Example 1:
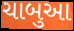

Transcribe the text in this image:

ચાબુઆ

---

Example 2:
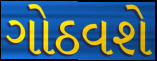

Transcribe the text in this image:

ગોઠવશે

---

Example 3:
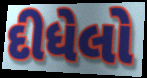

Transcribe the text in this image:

દીધેલો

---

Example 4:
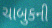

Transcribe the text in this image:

ચાબુકની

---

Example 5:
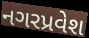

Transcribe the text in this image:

નગરપ્રવેશ